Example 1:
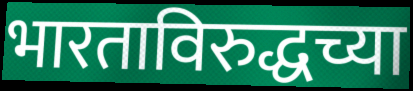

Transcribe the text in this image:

भारताविरुद्धच्या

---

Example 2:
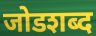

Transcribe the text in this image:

जोडशब्द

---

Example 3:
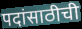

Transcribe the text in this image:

पदांसाठीची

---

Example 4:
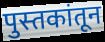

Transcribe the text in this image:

पुस्तकांतून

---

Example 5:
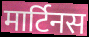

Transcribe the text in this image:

मार्टिनस